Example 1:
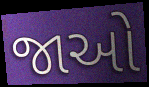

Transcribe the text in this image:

જાઓ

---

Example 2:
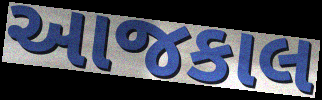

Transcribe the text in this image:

આજકાલ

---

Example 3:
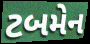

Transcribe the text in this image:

ટબમેન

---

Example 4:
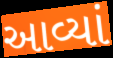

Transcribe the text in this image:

આવ્યાં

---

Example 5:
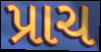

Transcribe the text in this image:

પ્રાચ